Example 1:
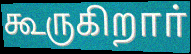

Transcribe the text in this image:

கூருகிறார்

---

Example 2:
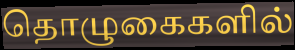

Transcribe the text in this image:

தொழுகைகளில்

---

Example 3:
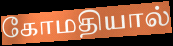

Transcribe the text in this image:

கோமதியால்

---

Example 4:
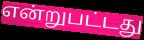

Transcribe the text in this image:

என்றுபட்டது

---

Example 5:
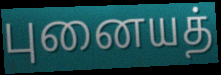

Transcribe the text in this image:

புனையத்